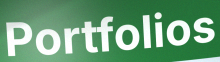
Portfolios